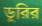
ডুরির